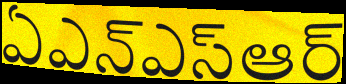
ఏఎన్ఎస్ఆర్